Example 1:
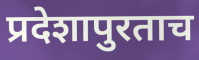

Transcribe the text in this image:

प्रदेशापुरताच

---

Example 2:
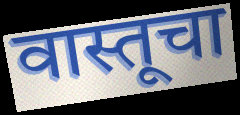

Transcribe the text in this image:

वास्तूचा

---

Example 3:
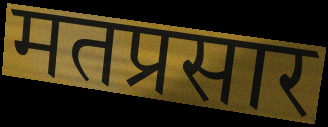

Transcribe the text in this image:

मतप्रसार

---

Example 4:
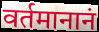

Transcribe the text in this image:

वर्तमानानं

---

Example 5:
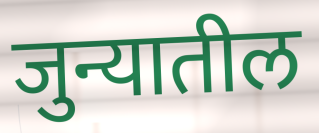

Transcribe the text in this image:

जुन्यातील